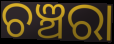
ଚଞ୍ଚରା